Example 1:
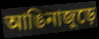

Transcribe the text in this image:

আঙিনাজুড়ে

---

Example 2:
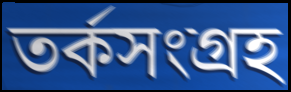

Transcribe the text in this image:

তর্কসংগ্রহ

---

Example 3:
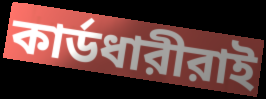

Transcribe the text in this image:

কার্ডধারীরাই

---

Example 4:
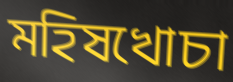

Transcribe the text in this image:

মহিষখোচা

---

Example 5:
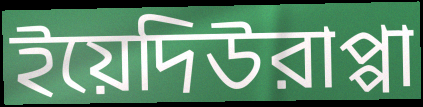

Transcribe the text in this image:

ইয়েদিউরাপ্পা